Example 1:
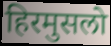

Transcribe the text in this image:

हिरमुसलो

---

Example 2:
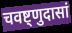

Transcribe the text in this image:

चवष्ट्णुदासां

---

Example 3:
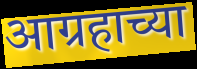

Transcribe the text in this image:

आग्रहाच्या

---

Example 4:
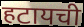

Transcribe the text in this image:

हटायची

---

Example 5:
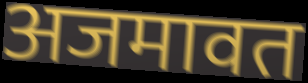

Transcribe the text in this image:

अजमावत